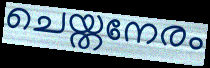
ചെയ്തനേരം